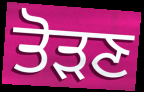
ਤੋੜਣ